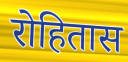
रोहितास